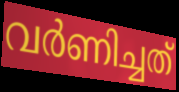
വർണിച്ചത്